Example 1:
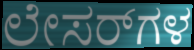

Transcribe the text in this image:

ಲೇಸರ್‌ಗಳ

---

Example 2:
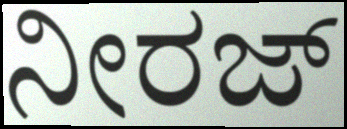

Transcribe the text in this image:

ನೀರಜ್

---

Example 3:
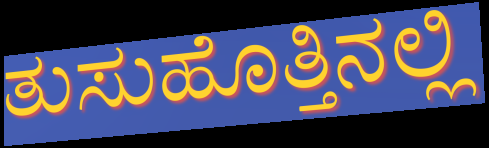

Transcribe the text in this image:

ತುಸುಹೊತ್ತಿನಲ್ಲಿ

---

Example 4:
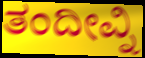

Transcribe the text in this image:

ತಂದೀವ್ನಿ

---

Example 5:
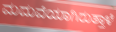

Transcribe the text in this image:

ಮದುವೆಯಾಗಿರುತ್ತಾಳೆ